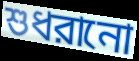
শুধরানো